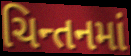
ચિન્તનમાં